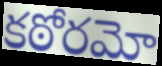
కఠోరమో